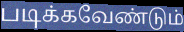
படிக்கவேண்டும்